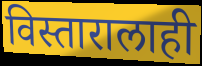
विस्तारालाही